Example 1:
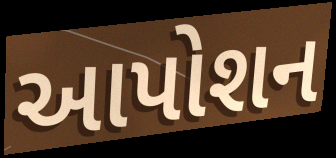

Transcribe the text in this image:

આપોશન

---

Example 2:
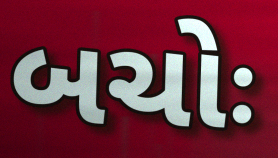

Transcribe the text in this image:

બચોઃ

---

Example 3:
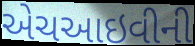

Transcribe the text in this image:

એચઆઇવીની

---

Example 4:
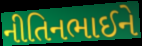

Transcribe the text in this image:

નીતિનભાઈને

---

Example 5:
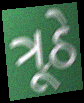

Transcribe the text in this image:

ત્રૂઠે